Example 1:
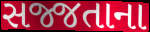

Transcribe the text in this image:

સજ્જતાના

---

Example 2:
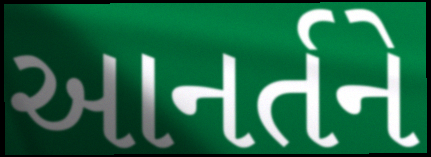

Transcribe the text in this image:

આનર્તને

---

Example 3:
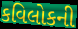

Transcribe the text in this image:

કવિલોકની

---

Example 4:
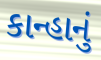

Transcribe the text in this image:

કાન્હાનું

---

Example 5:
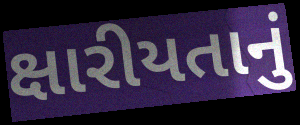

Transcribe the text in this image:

ક્ષારીયતાનું